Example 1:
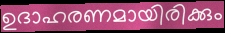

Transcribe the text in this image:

ഉദാഹരണമായിരിക്കും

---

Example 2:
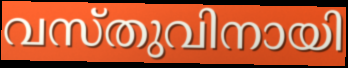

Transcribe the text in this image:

വസ്തുവിനായി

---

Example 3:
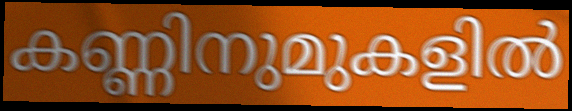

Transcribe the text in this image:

കണ്ണിനുമുകളിൽ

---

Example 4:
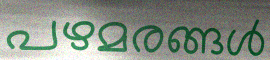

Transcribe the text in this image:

പഴമരങ്ങൾ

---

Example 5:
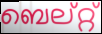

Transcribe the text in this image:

ബെല്റ്റ്